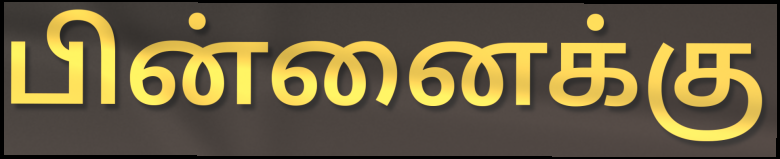
பின்னைக்கு